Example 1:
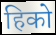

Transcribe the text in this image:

हिको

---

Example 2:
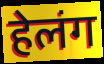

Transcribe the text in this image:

हेलंग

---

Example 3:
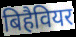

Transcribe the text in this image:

बिहैवियर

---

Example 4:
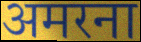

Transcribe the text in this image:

अमरना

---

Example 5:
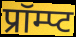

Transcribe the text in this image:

प्रॉम्प्ट